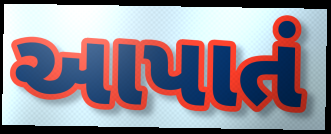
આપાતં